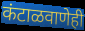
कंटाळवाणेही